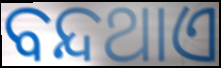
ବନ୍ଦଥାଏ